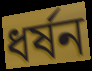
ধর্ষন